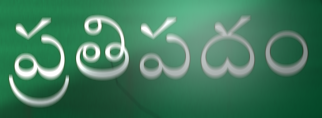
ప్రతిపదం